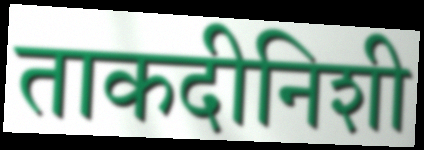
ताकदीनिशी